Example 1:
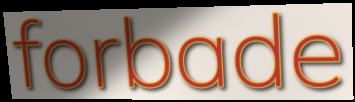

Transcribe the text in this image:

forbade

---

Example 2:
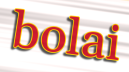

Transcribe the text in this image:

bolai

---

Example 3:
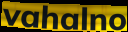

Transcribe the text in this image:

vahalno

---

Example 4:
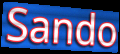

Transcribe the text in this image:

Sando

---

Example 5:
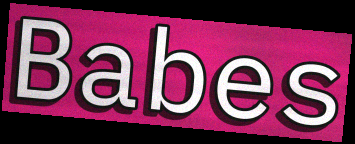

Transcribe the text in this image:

Babes